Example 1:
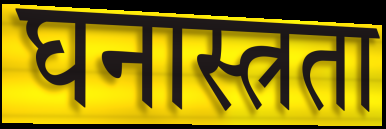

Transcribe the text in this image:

घनास्त्रता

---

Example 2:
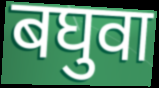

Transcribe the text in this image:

बघुवा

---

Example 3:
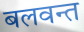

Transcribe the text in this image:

बलवन्‍त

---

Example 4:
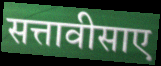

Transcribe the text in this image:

सत्तावीसाए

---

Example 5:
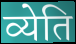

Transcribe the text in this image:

व्येति